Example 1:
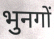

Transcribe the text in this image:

भुनगों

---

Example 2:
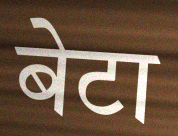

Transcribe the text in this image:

बेटा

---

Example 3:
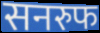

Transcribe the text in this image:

सनरुफ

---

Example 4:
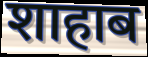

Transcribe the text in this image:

शाहाब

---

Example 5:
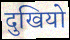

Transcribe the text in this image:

दुखियो